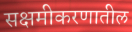
सक्षमीकरणातील